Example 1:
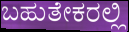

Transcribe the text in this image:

ಬಹುತೇಕರಲ್ಲಿ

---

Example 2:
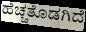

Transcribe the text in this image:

ಹೆಚ್ಚತೊಡಗಿದೆ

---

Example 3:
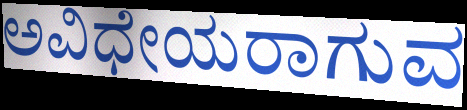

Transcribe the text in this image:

ಅವಿಧೇಯರಾಗುವ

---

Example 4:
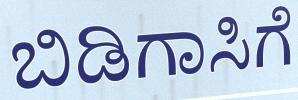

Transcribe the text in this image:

ಬಿಡಿಗಾಸಿಗೆ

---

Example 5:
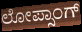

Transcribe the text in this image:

ಲೋಪ್ಸಾಂಗ್